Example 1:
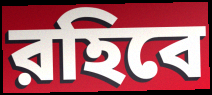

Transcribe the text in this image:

রহিবে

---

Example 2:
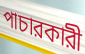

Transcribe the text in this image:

পাচারকারী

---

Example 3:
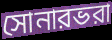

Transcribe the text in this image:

সোনারভরা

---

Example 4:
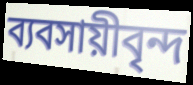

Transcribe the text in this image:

ব্যবসায়ীবৃন্দ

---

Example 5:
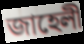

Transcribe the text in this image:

জাহেলী